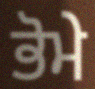
ਭੋਮੇ